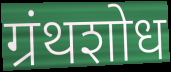
ग्रंथशोध